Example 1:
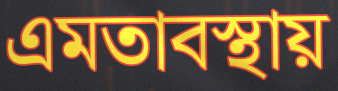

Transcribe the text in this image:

এমতাবস্থায়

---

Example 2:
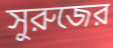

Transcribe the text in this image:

সুরুজের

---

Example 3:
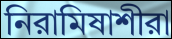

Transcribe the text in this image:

নিরামিষাশীরা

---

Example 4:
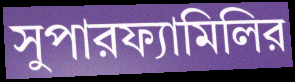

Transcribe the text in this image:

সুপারফ্যামিলির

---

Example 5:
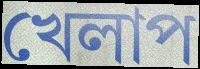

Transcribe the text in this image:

খেলাপ